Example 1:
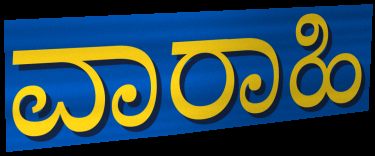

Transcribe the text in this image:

ವಾರಾಹಿ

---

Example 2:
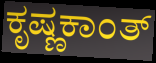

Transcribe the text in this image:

ಕೃಷ್ಣಕಾಂತ್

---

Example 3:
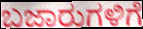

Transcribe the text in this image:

ಬಜಾರುಗಳಿಗೆ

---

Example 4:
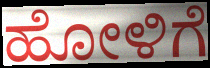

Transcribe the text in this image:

ಹೋಳಿಗೆ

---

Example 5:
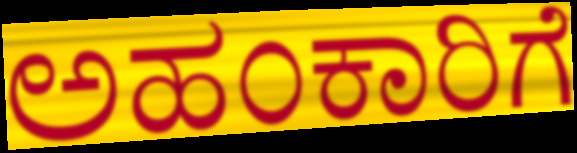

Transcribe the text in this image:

ಅಹಂಕಾರಿಗೆ